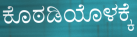
ಕೊಠಡಿಯೊಳಕ್ಕೆ